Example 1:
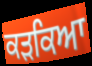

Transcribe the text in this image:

ਕੜਕਿਆ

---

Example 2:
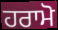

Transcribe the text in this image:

ਹਰਾਮੋ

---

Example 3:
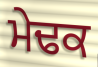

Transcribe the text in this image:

ਮੇਢਕ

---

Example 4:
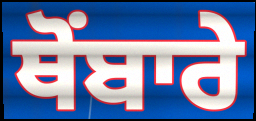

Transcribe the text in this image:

ਥੋਂਬਾਰੇ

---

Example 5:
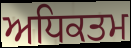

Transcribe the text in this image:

ਅਧਿਕਤਮ